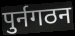
पुर्नगठन